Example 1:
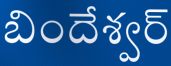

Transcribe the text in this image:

బిందేశ్వర్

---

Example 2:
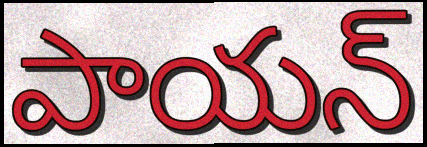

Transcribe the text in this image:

పాయన్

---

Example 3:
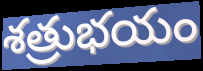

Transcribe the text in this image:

శత్రుభయం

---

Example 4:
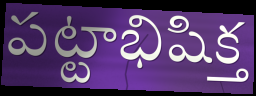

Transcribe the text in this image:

పట్టాభిషిక్త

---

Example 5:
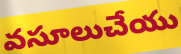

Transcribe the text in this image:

వసూలుచేయు